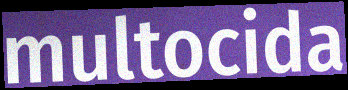
multocida